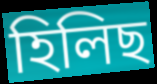
হিলিছ